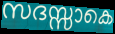
സദസ്സാകെ